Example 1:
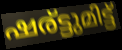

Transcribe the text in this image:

ഷര്ട്ടുമിട്ട്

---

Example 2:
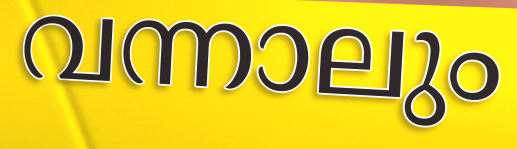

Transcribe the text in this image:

വന്നാലും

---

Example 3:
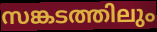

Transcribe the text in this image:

സങ്കടത്തിലും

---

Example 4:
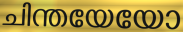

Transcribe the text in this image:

ചിന്തയേയോ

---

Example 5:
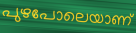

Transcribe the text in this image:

പുഴപോലെയാണ്